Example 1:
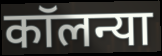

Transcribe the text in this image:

कॉलन्या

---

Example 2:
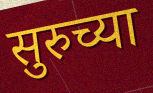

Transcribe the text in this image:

सुरुच्या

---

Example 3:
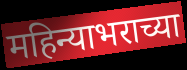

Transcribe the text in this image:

महिन्याभराच्या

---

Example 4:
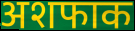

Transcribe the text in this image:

अशफाक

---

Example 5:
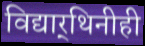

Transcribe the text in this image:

विद्यार्थिनीही